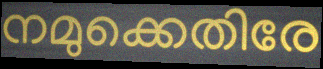
നമുക്കെതിരേ